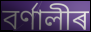
বৰ্ণালীৰ